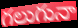
గలుగునా